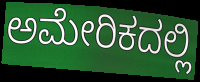
ಅಮೇರಿಕದಲ್ಲಿ